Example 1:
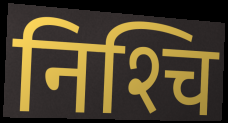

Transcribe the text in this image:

निश्चि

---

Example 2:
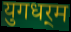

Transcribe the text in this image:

युगधर्म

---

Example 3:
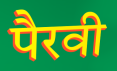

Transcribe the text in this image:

पैरवी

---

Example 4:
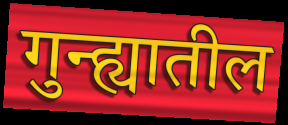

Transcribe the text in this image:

गुन्ह्यातील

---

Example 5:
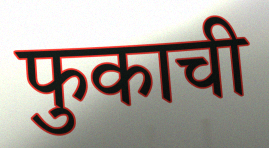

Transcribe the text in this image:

फुकाची